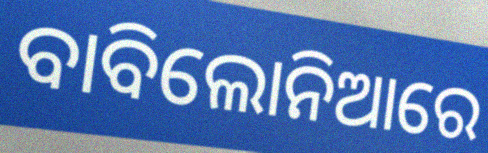
ବାବିଲୋନିଆରେ